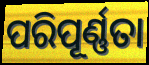
ପରିପୂର୍ଣ୍ଣତା